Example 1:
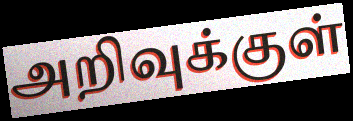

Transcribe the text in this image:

அறிவுக்குள்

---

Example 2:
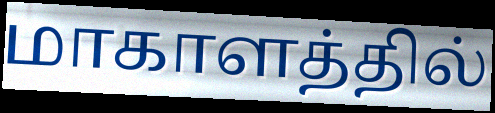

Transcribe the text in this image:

மாகாளத்தில்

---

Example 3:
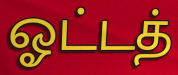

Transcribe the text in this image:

ஓட்டத்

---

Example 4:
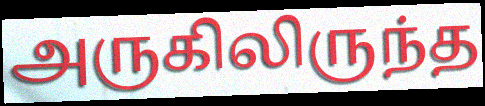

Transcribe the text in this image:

அருகிலிருந்த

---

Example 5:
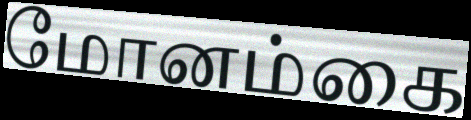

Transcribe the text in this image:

மோனம்கை